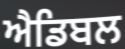
ਐਡਿਬਲ